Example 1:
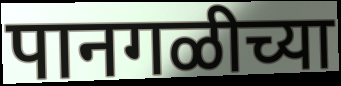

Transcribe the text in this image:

पानगळीच्या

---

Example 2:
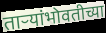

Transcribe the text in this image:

ताऱ्यांभोवतीच्या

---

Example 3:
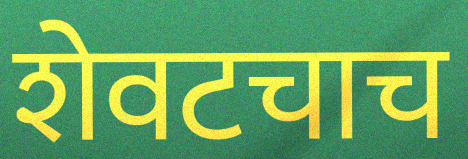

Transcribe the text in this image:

शेवटचाच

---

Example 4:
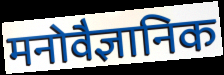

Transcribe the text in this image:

मनोवैज्ञानिक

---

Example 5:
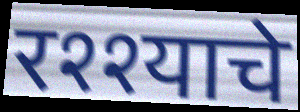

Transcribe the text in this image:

रश्श्याचे